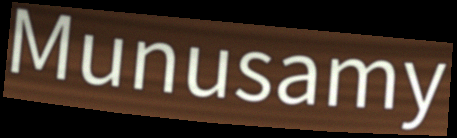
Munusamy